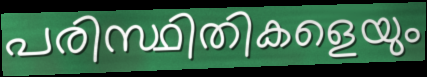
പരിസ്ഥിതികളെയും